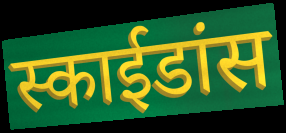
स्काईडांस